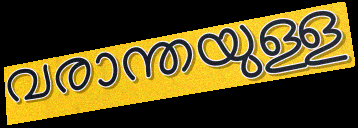
വരാന്തയുള്ള